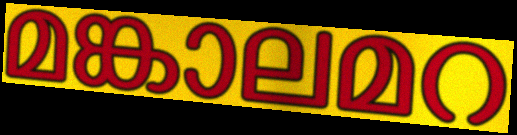
മങ്കാലമറ